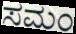
ಸಮಂ